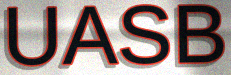
UASB